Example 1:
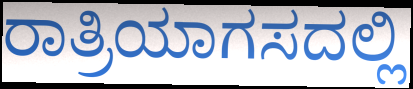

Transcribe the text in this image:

ರಾತ್ರಿಯಾಗಸದಲ್ಲಿ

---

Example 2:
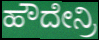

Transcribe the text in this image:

ಹೌದೇನ್ರಿ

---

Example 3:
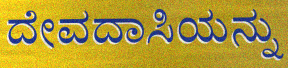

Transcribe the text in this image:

ದೇವದಾಸಿಯನ್ನು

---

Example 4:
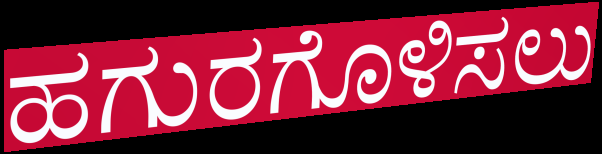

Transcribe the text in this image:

ಹಗುರಗೊಳಿಸಲು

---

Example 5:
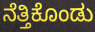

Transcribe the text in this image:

ನೆತ್ತಿಕೊಂಡು